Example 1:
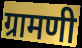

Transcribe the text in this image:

ग्रामणी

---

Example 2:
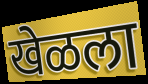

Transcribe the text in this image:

खेळला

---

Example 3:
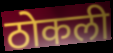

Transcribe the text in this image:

ठोकली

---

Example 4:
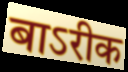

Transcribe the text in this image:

बाऽरीक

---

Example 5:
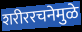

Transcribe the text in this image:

शरीररचनेमुळे